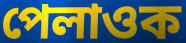
পেলাওক